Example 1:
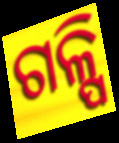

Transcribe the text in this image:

ଗଳ୍ପି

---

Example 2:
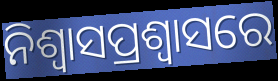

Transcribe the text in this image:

ନିଶ୍ୱାସପ୍ରଶ୍ୱାସରେ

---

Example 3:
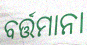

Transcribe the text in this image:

ବର୍ତ୍ତମାନା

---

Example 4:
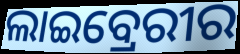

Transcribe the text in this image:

ଲାଇବ୍ରେରୀର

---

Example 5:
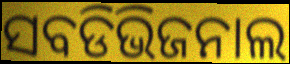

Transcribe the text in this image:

ସବଡିଭିଜନାଲ